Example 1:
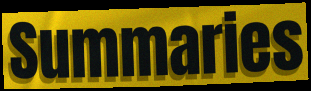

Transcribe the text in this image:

Summaries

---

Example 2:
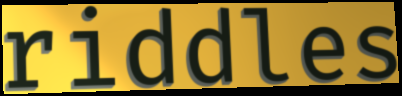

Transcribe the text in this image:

riddles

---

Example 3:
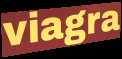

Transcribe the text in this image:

viagra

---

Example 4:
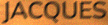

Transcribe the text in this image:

JACQUES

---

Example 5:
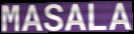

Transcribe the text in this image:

MASALA